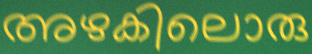
അഴകിലൊരു